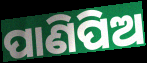
ପାଣିପିଅ